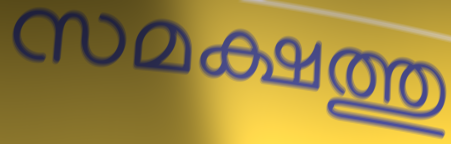
സമക്ഷത്തു